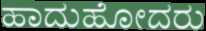
ಹಾದುಹೋದರು